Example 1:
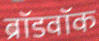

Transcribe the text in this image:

ब्रॉडवॉक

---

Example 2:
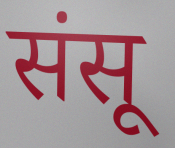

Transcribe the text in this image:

संसू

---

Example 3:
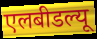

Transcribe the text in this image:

एलबीडल्यू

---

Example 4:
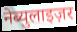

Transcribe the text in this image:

नेब्युलाइज़र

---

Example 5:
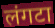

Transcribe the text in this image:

लंगटा